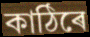
কাঠিৰে